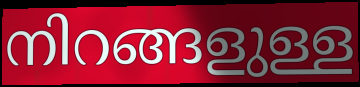
നിറങ്ങളുള്ള